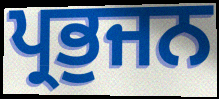
ਪ੍ਰਭੁਜਨ